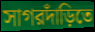
সাগরদাঁড়িতে